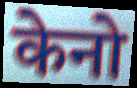
केनो